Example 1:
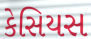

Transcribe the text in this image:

કેસિયસ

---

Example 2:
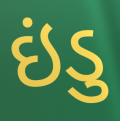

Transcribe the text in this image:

ઇંડુ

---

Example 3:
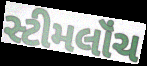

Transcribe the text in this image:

સ્ટીમલૉંચ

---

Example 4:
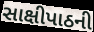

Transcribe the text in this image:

સાક્ષીપાઠની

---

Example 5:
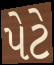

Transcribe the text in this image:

પેટે